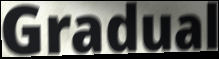
Gradual